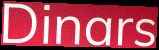
Dinars